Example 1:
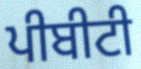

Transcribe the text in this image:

ਪੀਬੀਟੀ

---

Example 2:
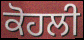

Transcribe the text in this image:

ਕੋਹਲੀ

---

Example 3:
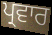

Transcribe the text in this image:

ਪ੍ਰਵਾਰ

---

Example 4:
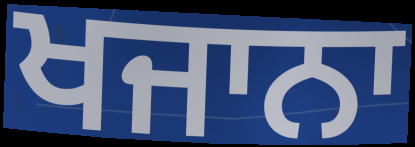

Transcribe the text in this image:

ਖਜਾਨਾ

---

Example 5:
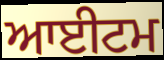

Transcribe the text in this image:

ਆਈਟਮ